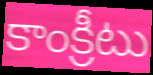
కాంక్రీటు